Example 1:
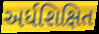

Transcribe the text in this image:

અર્ધશિક્ષિત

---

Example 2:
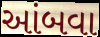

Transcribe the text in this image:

આંબવા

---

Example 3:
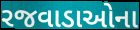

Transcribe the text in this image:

રજવાડાઓના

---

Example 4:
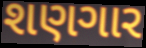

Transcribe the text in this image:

શણગાર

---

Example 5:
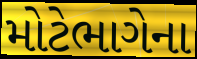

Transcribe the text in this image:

મોટેભાગેના